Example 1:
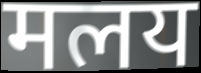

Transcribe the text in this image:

मलय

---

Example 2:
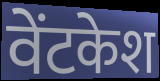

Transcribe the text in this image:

वेंटकेश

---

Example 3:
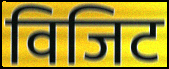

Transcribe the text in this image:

विजिट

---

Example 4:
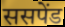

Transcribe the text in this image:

ससपेंड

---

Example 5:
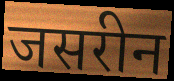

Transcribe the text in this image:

जसरीन